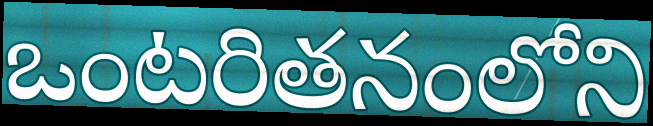
ఒంటరితనంలోని